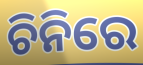
ଚିନିରେ